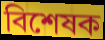
বিশেষক